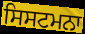
ਸਿਸਟਮਨਾ